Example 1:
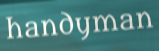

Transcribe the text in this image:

handyman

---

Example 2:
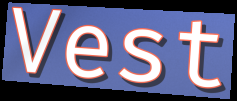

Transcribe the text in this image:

Vest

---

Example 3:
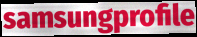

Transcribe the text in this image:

samsungprofile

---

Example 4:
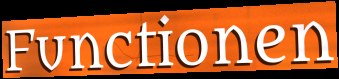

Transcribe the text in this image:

Functionen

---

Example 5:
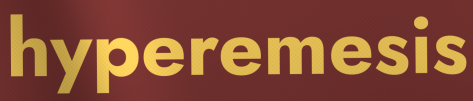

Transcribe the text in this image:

hyperemesis